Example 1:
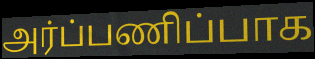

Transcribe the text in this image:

அர்ப்பணிப்பாக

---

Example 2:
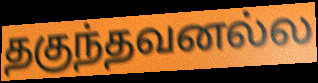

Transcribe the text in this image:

தகுந்தவனல்ல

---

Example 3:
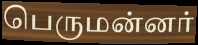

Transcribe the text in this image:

பெருமன்னர்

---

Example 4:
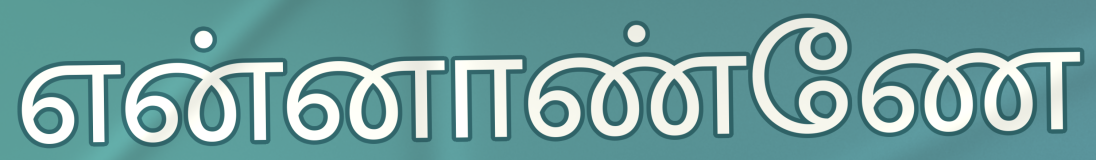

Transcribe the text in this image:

என்னாண்ணே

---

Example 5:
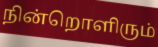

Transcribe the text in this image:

நின்றொளிரும்